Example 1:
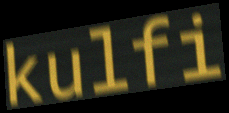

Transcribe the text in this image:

kulfi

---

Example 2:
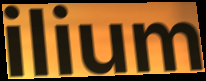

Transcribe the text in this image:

ilium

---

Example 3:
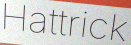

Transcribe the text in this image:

Hattrick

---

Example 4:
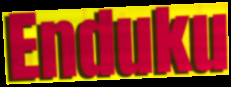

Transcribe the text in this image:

Enduku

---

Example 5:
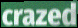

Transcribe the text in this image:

crazed